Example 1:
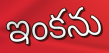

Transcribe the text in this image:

ఇంకను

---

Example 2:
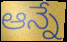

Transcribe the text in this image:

ఆన్నే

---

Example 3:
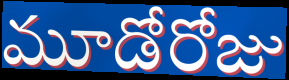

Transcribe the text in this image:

మూడోరోజు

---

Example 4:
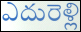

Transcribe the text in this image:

ఎదురెళ్లి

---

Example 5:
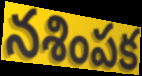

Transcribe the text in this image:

నశింపక